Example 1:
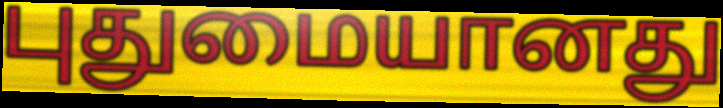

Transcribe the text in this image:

புதுமையானது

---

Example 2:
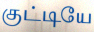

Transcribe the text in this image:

குட்டியே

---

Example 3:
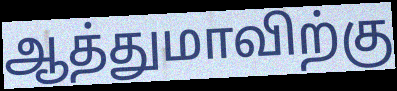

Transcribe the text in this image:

ஆத்துமாவிற்கு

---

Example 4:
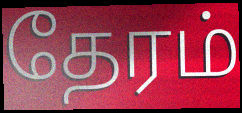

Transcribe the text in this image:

தேரம்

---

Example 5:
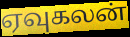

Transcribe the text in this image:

ஏவுகலன்